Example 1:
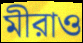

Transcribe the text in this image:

মীরাও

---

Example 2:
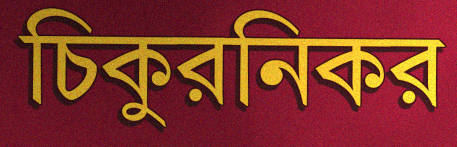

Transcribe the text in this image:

চিকুরনিকর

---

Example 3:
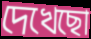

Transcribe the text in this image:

দেখেছো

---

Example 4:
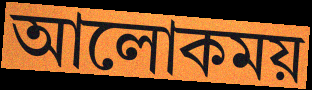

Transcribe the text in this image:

আলোকময়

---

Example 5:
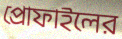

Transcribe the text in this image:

প্রোফাইলের